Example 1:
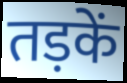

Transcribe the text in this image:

तड़कें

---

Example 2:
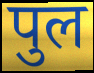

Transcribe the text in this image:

पुल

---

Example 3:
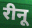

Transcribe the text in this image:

रीनू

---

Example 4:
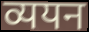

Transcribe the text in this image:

व्ययन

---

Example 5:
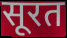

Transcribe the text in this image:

सूरत